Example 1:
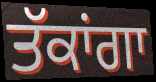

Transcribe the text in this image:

ਤੱਕਾਂਗਾ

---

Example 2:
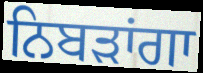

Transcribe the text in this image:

ਨਿਬੜਾਂਗਾ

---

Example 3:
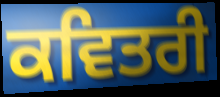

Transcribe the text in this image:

ਕਵਿਤਰੀ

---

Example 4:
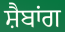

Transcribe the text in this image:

ਸ਼ੈਬਾਂਗ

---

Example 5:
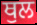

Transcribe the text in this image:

ਥੁਲ